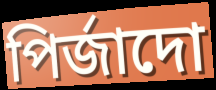
পিৰ্জাদো